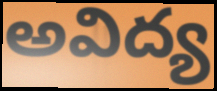
అవిద్య